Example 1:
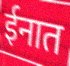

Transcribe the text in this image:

ईनात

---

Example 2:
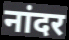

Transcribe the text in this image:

नांदर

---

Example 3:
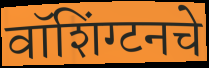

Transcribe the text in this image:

वॉशिंग्टनचे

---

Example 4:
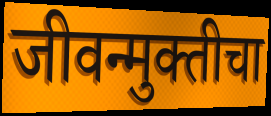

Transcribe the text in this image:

जीवन्मुक्तीचा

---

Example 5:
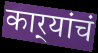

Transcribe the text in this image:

कार्यांचं